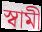
স্বামী